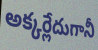
అక్కర్లేదుగానీ